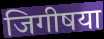
जिगीषया